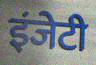
इंजेटी